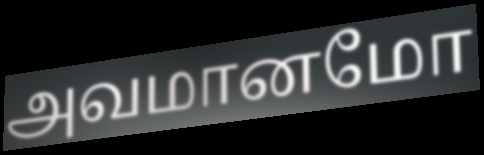
அவமானமோ